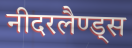
नीदरलैण्ड्स